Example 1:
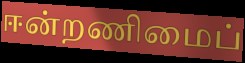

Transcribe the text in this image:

ஈன்றணிமைப்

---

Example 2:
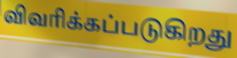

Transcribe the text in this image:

விவரிக்கப்படுகிறது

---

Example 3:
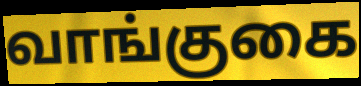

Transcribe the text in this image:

வாங்குகை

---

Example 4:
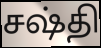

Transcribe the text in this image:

சஷ்தி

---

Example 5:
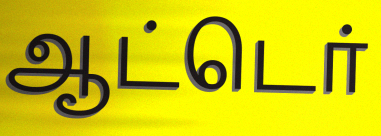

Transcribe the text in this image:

ஆட்டெர்